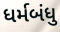
ધર્મબંધુ